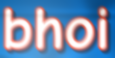
bhoi